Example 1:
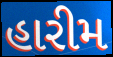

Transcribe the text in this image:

હારીમ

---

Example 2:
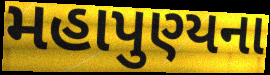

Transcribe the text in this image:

મહાપુણ્યના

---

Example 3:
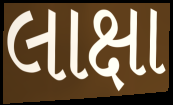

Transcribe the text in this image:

લાક્ષા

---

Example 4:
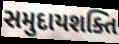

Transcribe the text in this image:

સમુદાયશક્તિ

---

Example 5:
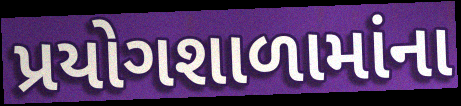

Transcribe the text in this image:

પ્રયોગશાળામાંના